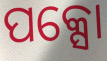
ପକ୍ସୋ